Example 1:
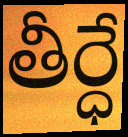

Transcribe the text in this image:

తీర్ధే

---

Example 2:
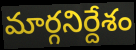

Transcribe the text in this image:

మార్గనిర్దేశం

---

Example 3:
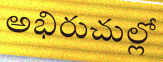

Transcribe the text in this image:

అభిరుచుల్లో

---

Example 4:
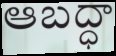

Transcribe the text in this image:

ఆబద్ధా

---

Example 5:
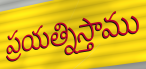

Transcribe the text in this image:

ప్రయత్నిస్తాము